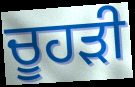
ਚੂਹੜੀ